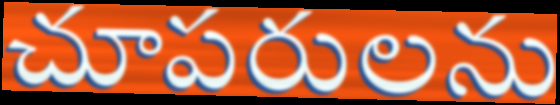
చూపరులను